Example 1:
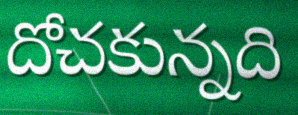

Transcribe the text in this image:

దోచకున్నది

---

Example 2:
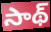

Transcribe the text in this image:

సాథ్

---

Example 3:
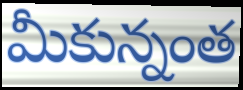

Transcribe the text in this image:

మీకున్నంత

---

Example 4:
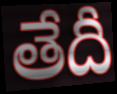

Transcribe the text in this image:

తేదీ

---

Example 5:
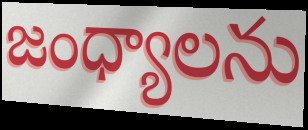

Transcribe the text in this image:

జంధ్యాలను